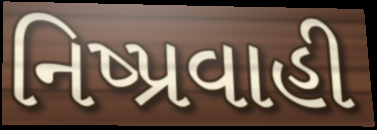
નિષ્પ્રવાહી